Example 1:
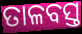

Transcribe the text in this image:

ତାଳବସ୍ତ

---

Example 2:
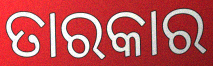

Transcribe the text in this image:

ତାରକାର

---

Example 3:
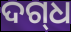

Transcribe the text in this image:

ଦଗ୍‌ଧ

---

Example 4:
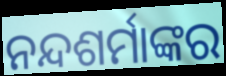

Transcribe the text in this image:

ନନ୍ଦଶର୍ମାଙ୍କର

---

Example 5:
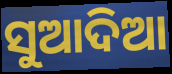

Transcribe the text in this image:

ସୁଆଦିଆ